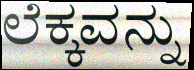
ಲೆಕ್ಕವನ್ನು